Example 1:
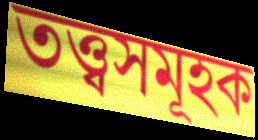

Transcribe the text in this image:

তত্ত্বসমূহক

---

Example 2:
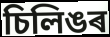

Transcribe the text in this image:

চিলিঙৰ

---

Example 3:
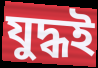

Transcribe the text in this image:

যুদ্ধই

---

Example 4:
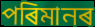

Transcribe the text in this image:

পৰিমানৰ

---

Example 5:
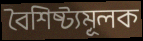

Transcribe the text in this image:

বৈশিষ্ট্যমূলক